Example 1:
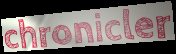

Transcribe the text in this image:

chronicler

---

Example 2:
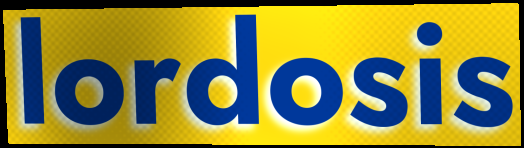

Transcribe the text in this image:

lordosis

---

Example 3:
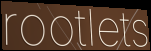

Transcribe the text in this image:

rootlets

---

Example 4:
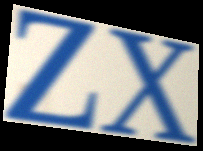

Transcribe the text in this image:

zx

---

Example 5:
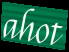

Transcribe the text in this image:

ahot